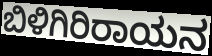
ಬಿಳಿಗಿರಿರಾಯನ